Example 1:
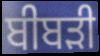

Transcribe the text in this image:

ਬੀਬੜੀ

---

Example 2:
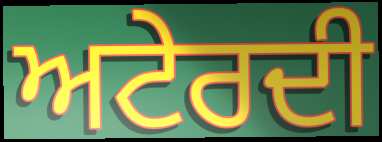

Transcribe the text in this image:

ਅਟੇਰਦੀ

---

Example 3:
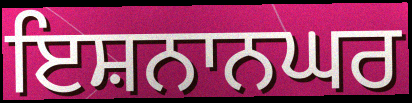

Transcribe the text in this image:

ਇਸ਼ਨਾਨਘਰ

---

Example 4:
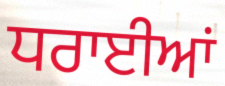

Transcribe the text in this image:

ਧਰਾਈਆਂ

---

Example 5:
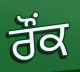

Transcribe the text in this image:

ਰੌਂਕ